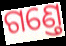
ଗଣ୍ତେ